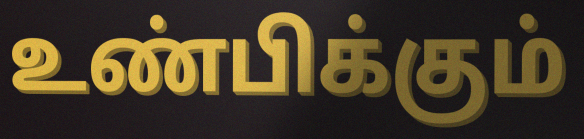
உண்பிக்கும்